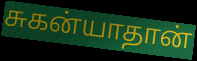
சுகன்யாதான்